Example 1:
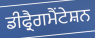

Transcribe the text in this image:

ਡੀਫ੍ਰੈਗਮੈਂਟੇਸ਼ਨ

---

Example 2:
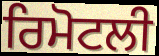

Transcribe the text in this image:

ਰਿਮੋਟਲੀ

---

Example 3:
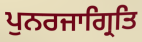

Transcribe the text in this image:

ਪੁਨਰਜਾਗ੍ਰਿਤਿ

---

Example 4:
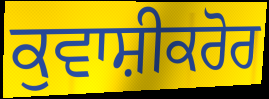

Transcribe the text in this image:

ਕੁਵਾਸ਼ੀਕਰੋਰ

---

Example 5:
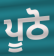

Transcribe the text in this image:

ਪੂਠੋ